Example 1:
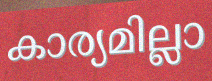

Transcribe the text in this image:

കാര്യമില്ലാ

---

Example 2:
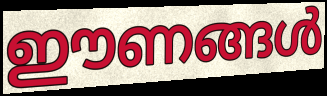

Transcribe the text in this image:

ഈണങ്ങൾ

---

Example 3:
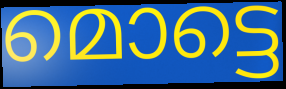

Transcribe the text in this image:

മൊട്ടെ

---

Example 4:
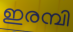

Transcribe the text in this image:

ഇരമ്പി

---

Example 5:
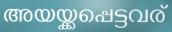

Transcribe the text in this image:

അയയ്ക്കപ്പെട്ടവര്